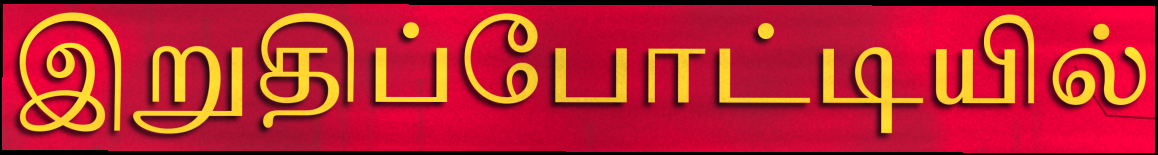
இறுதிப்போட்டியில்